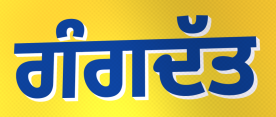
ਗੰਗਦੱਤ